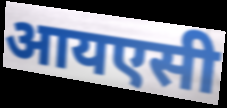
आयएसी